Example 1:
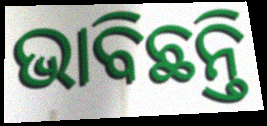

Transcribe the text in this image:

ଭାବିଛନ୍ତି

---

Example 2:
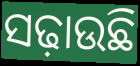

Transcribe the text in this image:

ସଢ଼ାଉଛି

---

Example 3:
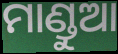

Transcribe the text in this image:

ମାଣ୍ଡୁଆ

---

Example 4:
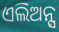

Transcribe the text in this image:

ଏଲିଅନ୍ସ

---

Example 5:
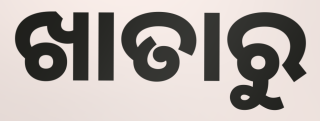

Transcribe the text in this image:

ଖାତାରୁ